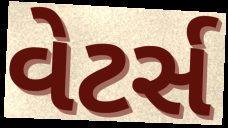
વેટર્સ